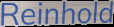
Reinhold